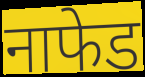
नाफेड